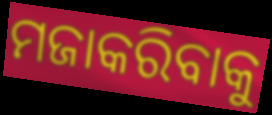
ମଜାକରିବାକୁ